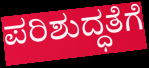
ಪರಿಶುದ್ಧತೆಗೆ